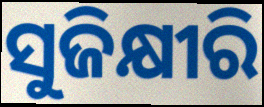
ସୁଜିକ୍ଷୀରି